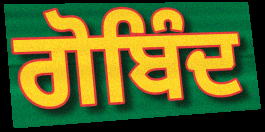
ਗੋਬਿੰਦ